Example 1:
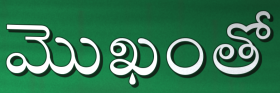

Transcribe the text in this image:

మొఖంతో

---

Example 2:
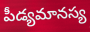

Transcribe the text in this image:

పీడ్యమానస్య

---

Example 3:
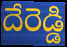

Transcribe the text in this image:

దేరెడ్డి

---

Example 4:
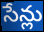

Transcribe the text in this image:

సేన్లు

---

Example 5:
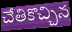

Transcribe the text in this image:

చేతికొచ్చిన